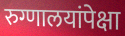
रुग्णालयांपेक्षा